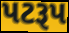
પટરૂપ